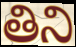
తిని